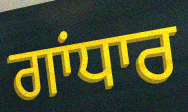
ਗਾਂਧਾਰ